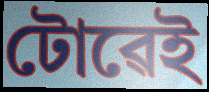
টোৱেই